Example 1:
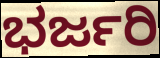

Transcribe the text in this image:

ಭರ್ಜರಿ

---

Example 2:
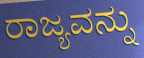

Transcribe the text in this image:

ರಾಜ್ಯವನ್ನು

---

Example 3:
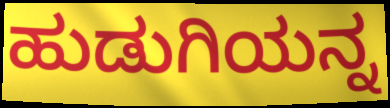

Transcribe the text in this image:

ಹುಡುಗಿಯನ್ನ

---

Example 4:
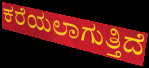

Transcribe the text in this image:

ಕರೆಯಲಾಗುತ್ತಿದೆ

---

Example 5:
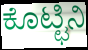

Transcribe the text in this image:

ಕೊಟ್ಟಿನಿ